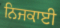
ਨਿਜਕਾਈ